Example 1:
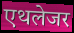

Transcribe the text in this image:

एथलेजर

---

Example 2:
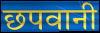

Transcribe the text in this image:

छपवानी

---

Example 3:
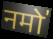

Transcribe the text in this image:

नमो॑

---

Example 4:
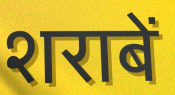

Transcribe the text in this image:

शराबें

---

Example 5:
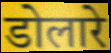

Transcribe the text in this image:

डोलारे